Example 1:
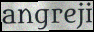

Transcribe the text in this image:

angreji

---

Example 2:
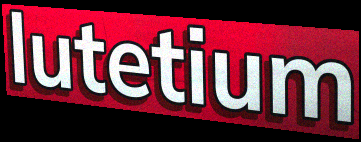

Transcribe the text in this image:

lutetium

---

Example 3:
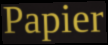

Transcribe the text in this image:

Papier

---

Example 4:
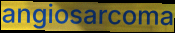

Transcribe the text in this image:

angiosarcoma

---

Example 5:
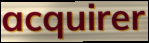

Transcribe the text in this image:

acquirer